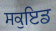
ਸਕੁਇਡ